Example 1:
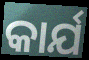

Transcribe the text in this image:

କାର୍ଯ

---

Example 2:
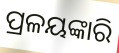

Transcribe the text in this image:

ପ୍ରଳୟଙ୍କାରି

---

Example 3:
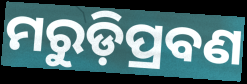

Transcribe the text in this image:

ମରୁଡ଼ିପ୍ରବଣ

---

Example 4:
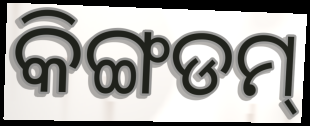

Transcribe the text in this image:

କିଙ୍ଗଡମ୍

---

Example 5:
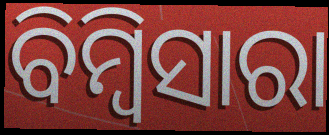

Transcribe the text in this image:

ବିମ୍ବିସାରା